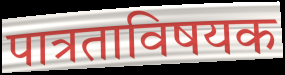
पात्रताविषयक